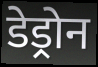
डेड्रोन